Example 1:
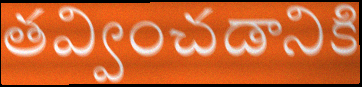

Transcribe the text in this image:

తవ్వించడానికి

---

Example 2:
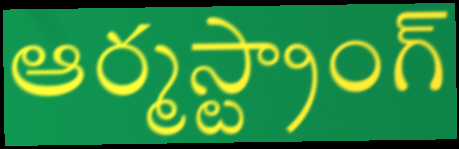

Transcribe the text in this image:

ఆర్మస్ట్రాంగ్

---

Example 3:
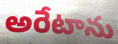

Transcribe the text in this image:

అరేటాను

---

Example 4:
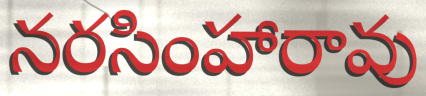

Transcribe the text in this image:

నరసింహారావు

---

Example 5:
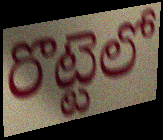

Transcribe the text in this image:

రొట్టెలో